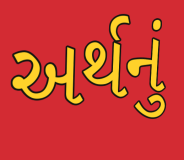
અર્થનું